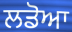
ਲਡੋਆ